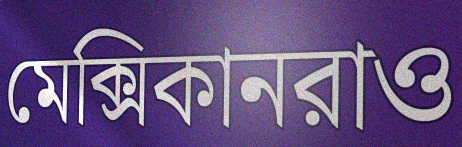
মেক্সিকানরাও